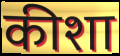
कीशा